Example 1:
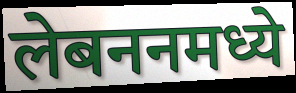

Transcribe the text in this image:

लेबननमध्ये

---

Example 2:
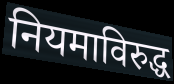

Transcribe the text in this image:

नियमाविरुद्ध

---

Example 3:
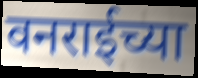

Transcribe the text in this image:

वनराईच्या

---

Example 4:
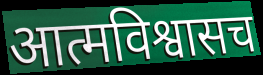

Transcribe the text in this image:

आत्मविश्वासच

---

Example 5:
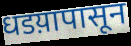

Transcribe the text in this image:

धडय़ापासून